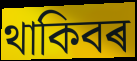
থাকিবৰ